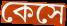
কেসে